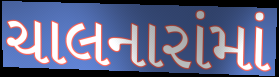
ચાલનારાંમાં